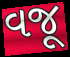
વજૂ